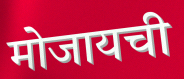
मोजायची